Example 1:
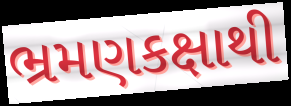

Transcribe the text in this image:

ભ્રમણકક્ષાથી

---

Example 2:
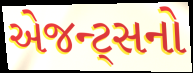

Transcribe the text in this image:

એજન્ટ્સનો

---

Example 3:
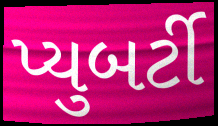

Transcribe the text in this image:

પ્યુબર્ટી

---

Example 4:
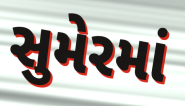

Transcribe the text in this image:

સુમેરમાં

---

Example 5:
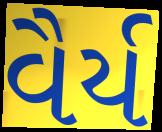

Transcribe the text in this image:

વૈર્ય